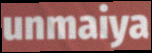
unmaiya